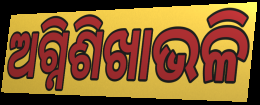
ଅଗ୍ନିଶିଖାଭଳି